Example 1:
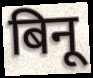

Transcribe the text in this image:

बिनू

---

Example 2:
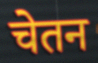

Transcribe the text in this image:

चेतन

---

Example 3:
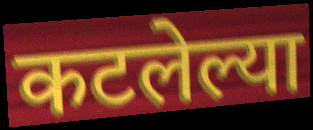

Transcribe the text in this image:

कटलेल्या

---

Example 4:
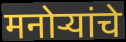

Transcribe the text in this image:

मनोऱ्यांचे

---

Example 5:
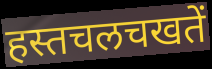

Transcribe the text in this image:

हस्तचलचखतें